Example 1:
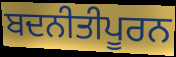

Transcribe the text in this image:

ਬਦਨੀਤੀਪੂਰਨ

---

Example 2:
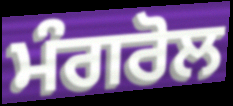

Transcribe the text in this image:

ਮੰਗਰੋਲ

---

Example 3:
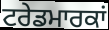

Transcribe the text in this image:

ਟਰੇਡਮਾਰਕਾਂ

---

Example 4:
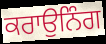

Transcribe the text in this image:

ਕਰਾਉਨਿੰਗ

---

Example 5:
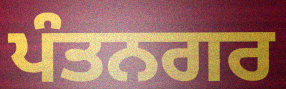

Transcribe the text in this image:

ਪੰਤਨਗਰ